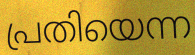
പ്രതിയെന്ന